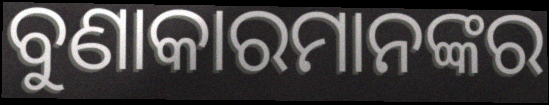
ବୁଣାକାରମାନଙ୍କର